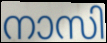
നാസി